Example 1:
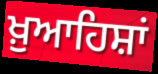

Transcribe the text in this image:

ਖ਼ੁਆਹਿਸ਼ਾਂ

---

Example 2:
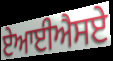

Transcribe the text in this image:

ਏਆਈਐਸਏ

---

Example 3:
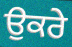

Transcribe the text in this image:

ਉਕਰੇ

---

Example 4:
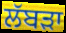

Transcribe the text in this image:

ਲੱਬੜਾ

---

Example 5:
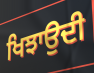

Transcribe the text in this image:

ਖਿਝਾਉਦੀ